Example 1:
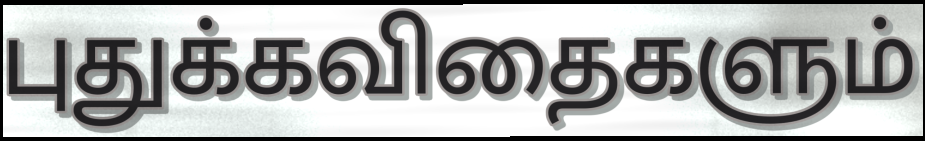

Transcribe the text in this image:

புதுக்கவிதைகளும்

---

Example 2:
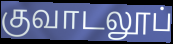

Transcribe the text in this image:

குவாடலூப்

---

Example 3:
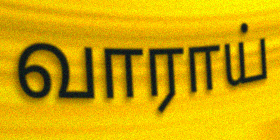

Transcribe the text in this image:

வாராய்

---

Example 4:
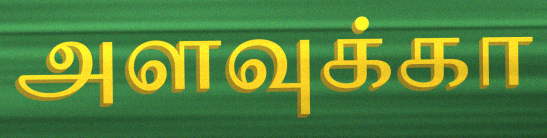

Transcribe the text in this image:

அளவுக்கா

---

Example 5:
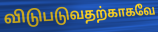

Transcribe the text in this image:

விடுபடுவதற்காகவே